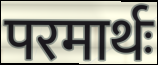
परमार्थः